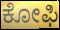
ಕೋಫಿ